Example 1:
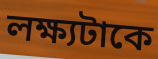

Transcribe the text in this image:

লক্ষ্যটাকে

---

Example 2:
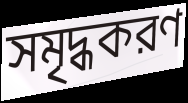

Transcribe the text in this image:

সমৃদ্ধকরণ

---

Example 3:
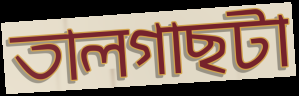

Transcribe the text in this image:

তালগাছটা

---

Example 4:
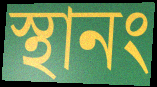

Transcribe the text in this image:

স্থানং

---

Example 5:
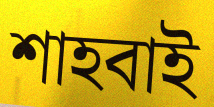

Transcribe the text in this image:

শাহবাই